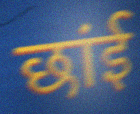
छांई